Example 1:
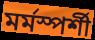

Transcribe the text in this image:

মর্মস্পর্শী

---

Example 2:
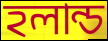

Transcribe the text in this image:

হলান্ড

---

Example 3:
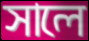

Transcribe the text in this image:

সালে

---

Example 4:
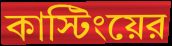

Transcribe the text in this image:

কাস্টিংয়ের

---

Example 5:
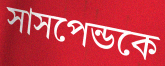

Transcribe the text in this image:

সাসপেন্ডকে